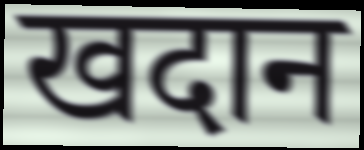
खदान